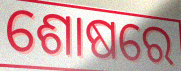
ଶୋଷରେ